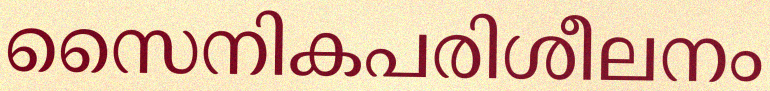
സൈനികപരിശീലനം